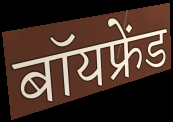
बॉयफ्रेंड